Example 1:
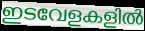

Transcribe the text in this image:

ഇടവേളകളിൽ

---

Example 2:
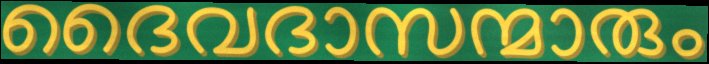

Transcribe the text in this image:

ദൈവദാസന്മാരും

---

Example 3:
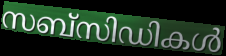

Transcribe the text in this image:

സബ്സിഡികൾ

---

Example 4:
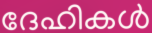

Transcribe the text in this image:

ദേഹികൾ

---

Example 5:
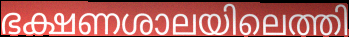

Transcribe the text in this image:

ഭക്ഷണശാലയിലെത്തി